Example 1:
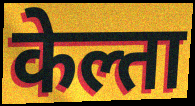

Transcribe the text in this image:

केल्ता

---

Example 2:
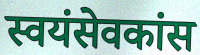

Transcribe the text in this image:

स्वयंसेवकांस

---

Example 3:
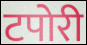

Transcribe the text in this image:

टपोरी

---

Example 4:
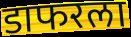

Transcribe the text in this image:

डाफरला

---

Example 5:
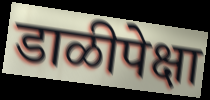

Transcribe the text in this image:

डाळीपेक्षा